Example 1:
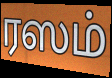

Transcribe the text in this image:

ரஸம்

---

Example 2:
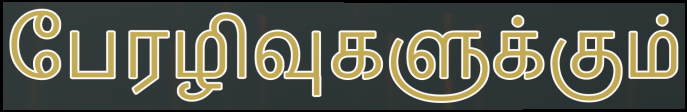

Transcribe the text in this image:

பேரழிவுகளுக்கும்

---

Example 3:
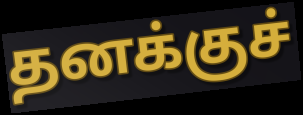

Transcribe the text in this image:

தனக்குச்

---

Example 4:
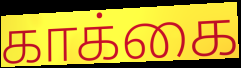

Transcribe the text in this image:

காக்கை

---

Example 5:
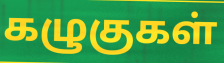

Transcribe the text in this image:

கழுகுகள்